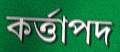
কৰ্ত্তাপদ